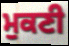
ਮੁਕਣੀ